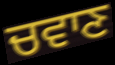
ਚਵਾਣ